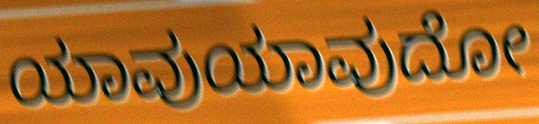
ಯಾವುಯಾವುದೋ